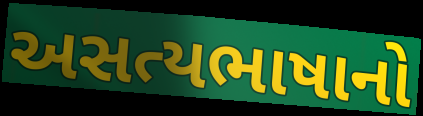
અસત્યભાષાનો